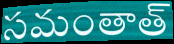
సమంతాత్